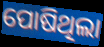
ପୋଷିଥିଲା